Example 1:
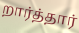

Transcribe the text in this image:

றார்த்தார்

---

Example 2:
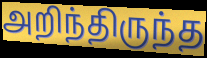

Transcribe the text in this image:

அறிந்திருந்த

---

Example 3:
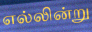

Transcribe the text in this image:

எல்லின்று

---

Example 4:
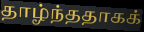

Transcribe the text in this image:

தாழ்ந்ததாகக்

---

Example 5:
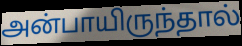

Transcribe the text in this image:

அன்பாயிருந்தால்